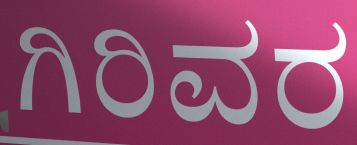
ಗಿರಿವರ